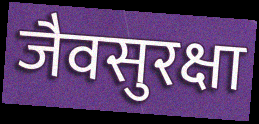
जैवसुरक्षा